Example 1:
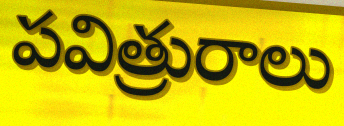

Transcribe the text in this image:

పవిత్రురాలు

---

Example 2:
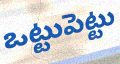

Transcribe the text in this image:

ఒట్టుపెట్టు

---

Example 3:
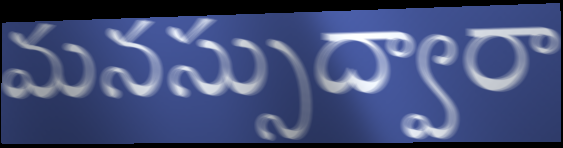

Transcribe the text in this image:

మనస్సుద్వారా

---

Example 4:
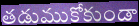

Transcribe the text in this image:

తడుముకోకుండా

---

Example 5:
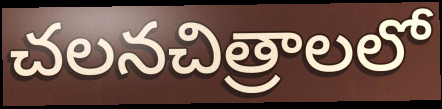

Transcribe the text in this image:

చలనచిత్రాలలో